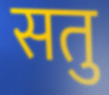
सतु